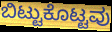
ಬಿಟ್ಟುಕೊಟ್ಟವು